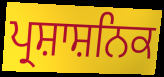
ਪ੍ਰਸ਼ਾਸ਼ਨਿਕ